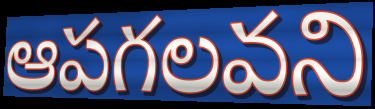
ఆపగలవని